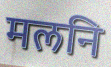
मलनि